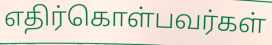
எதிர்கொள்பவர்கள்